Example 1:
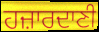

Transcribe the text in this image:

ਹਜ਼ਾਰਦਾਣੀ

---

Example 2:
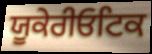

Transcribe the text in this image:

ਯੂਕੇਰੀਓਟਿਕ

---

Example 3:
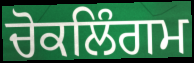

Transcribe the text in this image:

ਚੋਕਲਿੰਗਮ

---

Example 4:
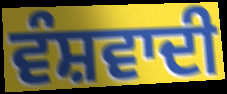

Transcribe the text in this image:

ਵੰਸ਼ਵਾਦੀ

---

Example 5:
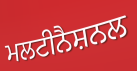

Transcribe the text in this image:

ਮਲਟੀਨੈਸ਼ਨਲ